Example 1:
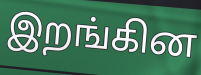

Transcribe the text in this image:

இறங்கின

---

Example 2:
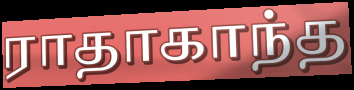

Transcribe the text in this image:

ராதாகாந்த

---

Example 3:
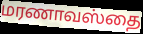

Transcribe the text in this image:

மரணாவஸ்தை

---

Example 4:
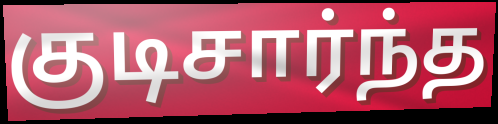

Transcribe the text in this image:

குடிசார்ந்த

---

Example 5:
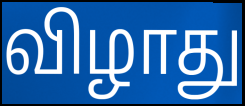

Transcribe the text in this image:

விழாது